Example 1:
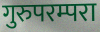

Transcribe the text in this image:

गुरुपरम्परा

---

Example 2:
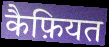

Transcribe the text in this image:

कैफ़ियत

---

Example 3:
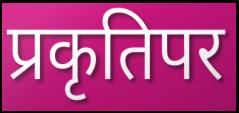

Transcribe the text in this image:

प्रकृतिपर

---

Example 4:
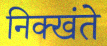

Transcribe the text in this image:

निक्खंते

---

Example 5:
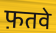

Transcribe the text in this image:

फ़तवे